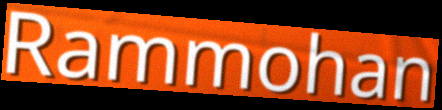
Rammohan